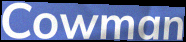
Cowman